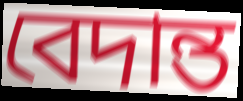
বেদান্ত